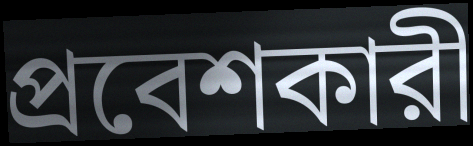
প্রবেশকারী